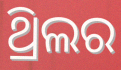
ଥ୍ରିଲର